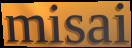
misai